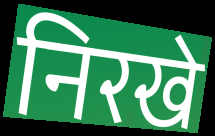
निरखे